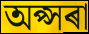
অপ্সৰা